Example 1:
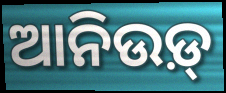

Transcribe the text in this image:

ଆନିଉଡ଼୍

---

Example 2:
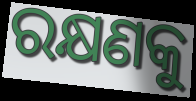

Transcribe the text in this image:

ରକ୍ଷଣକୁ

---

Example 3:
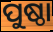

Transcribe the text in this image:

ପୁଷ୍ଠା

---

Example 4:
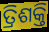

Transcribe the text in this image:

ତ୍ରିଶକ୍ତି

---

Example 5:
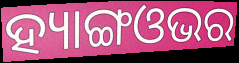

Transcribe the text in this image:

ହ୍ୟାଙ୍ଗଓଭର